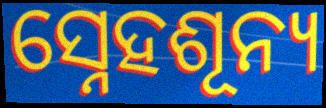
ସ୍ନେହଶୂନ୍ୟ